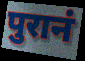
पुरानं